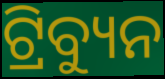
ଟ୍ରିବ୍ୟୁନ